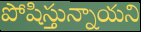
పోషిస్తున్నాయని